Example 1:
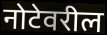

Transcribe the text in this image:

नोटेवरील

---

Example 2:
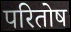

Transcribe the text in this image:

परितोष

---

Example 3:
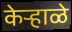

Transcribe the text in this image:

केऱ्हाळे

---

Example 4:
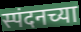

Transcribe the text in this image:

स्पंदनच्या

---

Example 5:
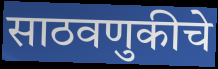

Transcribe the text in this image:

साठवणुकीचे